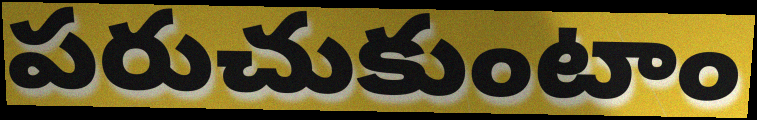
పరుచుకుంటాం